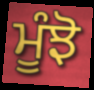
ਮੂੰਝੋ